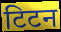
टिटन